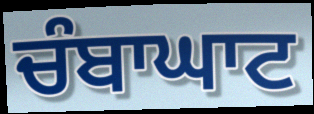
ਚੰਬਾਘਾਟ